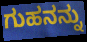
ಗುಹನನ್ನು